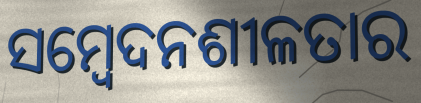
ସମ୍ୱେଦନଶୀଳତାର